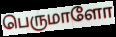
பெருமாளோ